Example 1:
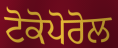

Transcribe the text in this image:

ਟੋਕੋਪੋਰੋਲ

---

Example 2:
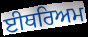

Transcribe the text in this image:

ਈਥਰਿਅਮ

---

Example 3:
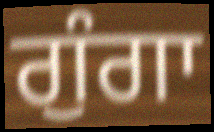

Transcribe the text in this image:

ਗੁੰਗਾ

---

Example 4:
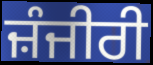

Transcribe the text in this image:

ਜ਼ੰਜੀਰੀ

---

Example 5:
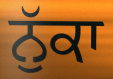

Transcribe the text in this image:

ਨੁੱਕਾ